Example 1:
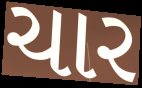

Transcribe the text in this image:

ચાર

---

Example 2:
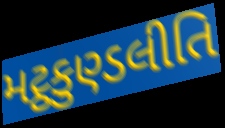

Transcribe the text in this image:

મટ્ઠકુણ્ડલીતિ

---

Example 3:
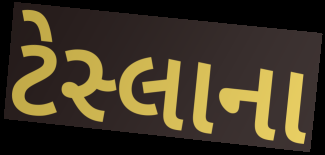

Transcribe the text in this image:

ટેસ્લાના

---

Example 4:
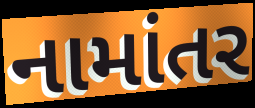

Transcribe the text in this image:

નામાંતર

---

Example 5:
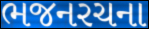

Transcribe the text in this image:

ભજનરચના